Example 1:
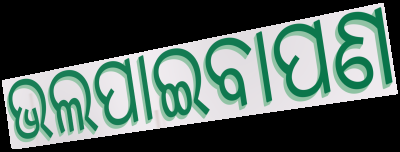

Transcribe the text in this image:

ଭଲପାଇବାପଣ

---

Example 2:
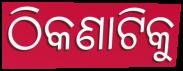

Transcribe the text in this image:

ଠିକଣାଟିକୁ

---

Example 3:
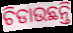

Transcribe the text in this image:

ଚିଡାଉଛନ୍ତି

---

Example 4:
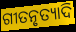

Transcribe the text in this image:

ଗୀତନୃତ୍ୟାଦି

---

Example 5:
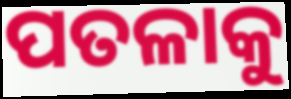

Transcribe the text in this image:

ପତଳାକୁ